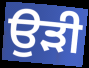
ਉਡ਼ੀ